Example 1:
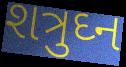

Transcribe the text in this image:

શત્રુઘ્ન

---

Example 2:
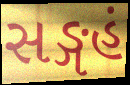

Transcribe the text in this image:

સઙ્ગહં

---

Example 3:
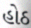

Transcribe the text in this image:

હોઠ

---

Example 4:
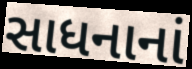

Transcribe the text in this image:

સાધનાનાં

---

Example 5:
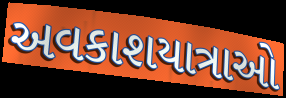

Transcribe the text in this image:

અવકાશયાત્રાઓ